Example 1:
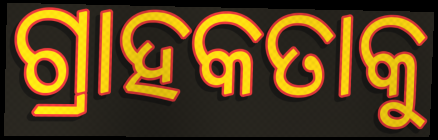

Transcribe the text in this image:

ଗ୍ରାହକତାକୁ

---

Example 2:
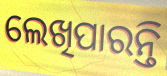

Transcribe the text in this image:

ଲେଖିପାରନ୍ତି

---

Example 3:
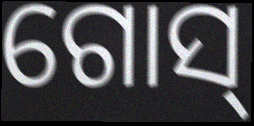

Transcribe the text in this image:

ଗୋସ୍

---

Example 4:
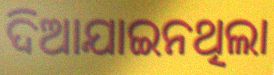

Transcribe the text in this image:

ଦିଆଯାଇନଥିଲା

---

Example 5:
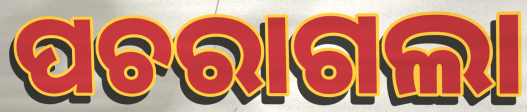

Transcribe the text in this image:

ପଚରାଗଲା